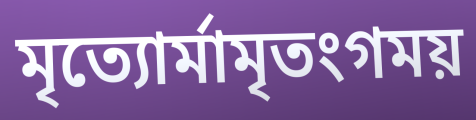
মৃত্যোর্মামৃতংগময়